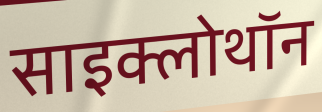
साइक्लोथॉन